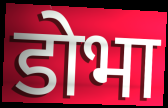
डोभा